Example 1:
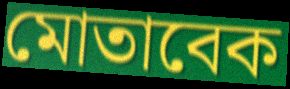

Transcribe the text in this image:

মোতাবেক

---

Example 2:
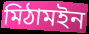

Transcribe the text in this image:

মিঠামইন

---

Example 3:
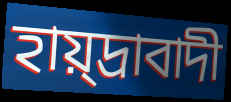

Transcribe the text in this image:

হায়্দ্রাবাদী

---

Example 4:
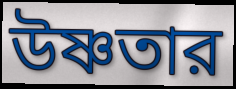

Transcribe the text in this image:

উষ্ণতার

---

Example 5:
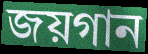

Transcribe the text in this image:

জয়গান